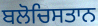
ਬਲੋਚਿਸਤਾਨ